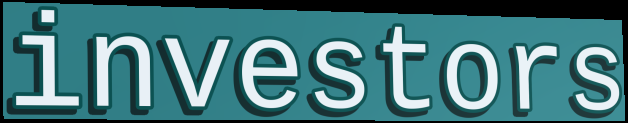
investors